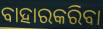
ବାହାରକରିବା